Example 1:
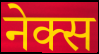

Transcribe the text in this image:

नेक्स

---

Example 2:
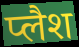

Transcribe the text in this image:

प्लैश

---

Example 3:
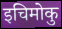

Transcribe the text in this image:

इचिमोकु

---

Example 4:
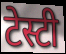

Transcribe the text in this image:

टेस्टी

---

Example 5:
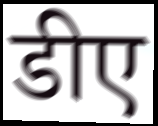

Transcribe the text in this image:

डीए